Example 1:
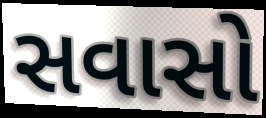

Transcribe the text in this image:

સવાસો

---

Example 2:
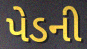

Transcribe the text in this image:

પેડની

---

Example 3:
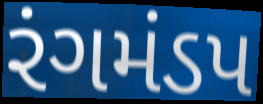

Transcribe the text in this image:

રંગમંડપ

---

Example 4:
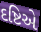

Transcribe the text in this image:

દષ્ટિએ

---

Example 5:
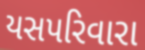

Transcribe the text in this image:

યસપરિવારા